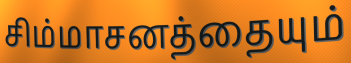
சிம்மாசனத்தையும்